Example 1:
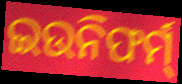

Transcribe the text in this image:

ଇଉନିଫର୍ମ୍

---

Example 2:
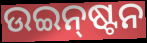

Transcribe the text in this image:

ଉଇନ୍‌ଷ୍ଟନ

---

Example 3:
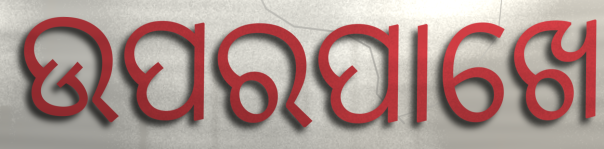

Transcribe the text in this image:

ଉପରପାଖେ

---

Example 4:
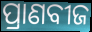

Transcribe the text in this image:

ପ୍ରାଣବୀଜ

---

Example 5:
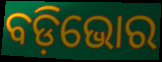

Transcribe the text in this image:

ବଡ଼ିଭୋର